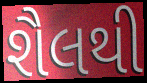
શૈલથી